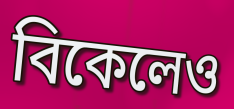
বিকেলেও